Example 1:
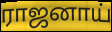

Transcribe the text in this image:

ராஜனாய்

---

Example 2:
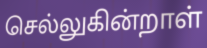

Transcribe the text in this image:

செல்லுகின்றாள்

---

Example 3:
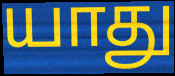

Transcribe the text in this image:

யாது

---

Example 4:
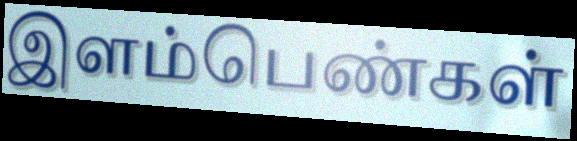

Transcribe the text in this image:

இளம்பெண்கள்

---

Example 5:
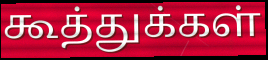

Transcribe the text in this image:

கூத்துக்கள்